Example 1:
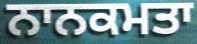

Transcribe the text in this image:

ਨਾਨਕਮਤਾ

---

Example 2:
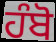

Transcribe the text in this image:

ਹੰਬੋ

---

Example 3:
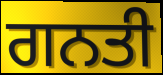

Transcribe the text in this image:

ਗਨਤੀ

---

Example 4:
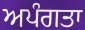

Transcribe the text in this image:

ਅਪੰਗਤਾ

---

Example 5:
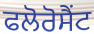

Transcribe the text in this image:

ਫਲੋਰੋਸੈਂਟ